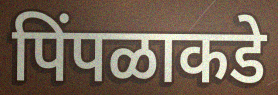
पिंपळाकडे